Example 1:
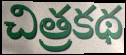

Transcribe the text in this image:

చిత్రకథ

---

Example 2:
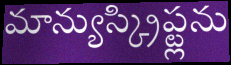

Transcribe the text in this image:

మాన్యుస్క్రిప్ట్లను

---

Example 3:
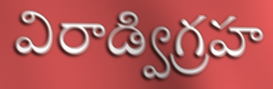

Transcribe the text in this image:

విరాడ్విగ్రహ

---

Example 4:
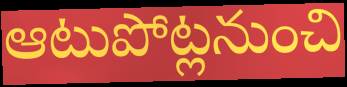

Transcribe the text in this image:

ఆటుపోట్లనుంచి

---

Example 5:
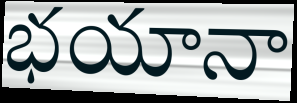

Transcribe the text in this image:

భయానా